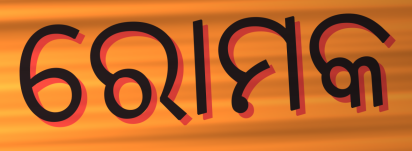
ରୋମକ